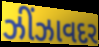
ઝીંઝાવદર